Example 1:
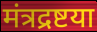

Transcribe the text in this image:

मंत्रद्रष्टया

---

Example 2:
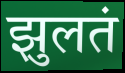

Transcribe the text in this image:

झुलतं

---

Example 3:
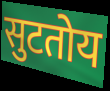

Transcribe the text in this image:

सुटतोय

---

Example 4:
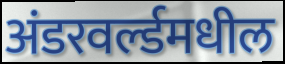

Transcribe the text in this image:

अंडरवर्ल्डमधील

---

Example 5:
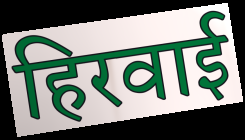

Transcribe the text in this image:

हिरवाई